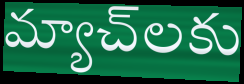
మ్యాచ్‌లకు